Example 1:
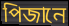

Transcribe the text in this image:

পিজানে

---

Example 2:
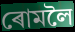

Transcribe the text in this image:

ৰোমলৈ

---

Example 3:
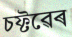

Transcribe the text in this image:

চফ্টৱেৰ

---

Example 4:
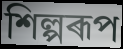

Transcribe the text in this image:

শিল্পৰূপ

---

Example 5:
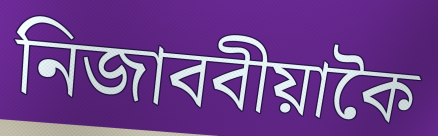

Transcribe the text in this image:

নিজাববীয়াকৈ